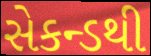
સેકન્ડથી